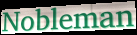
Nobleman